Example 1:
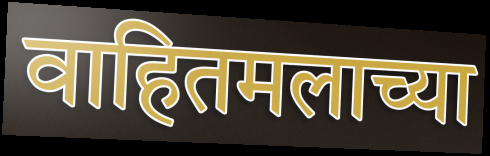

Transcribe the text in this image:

वाहितमलाच्या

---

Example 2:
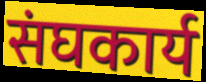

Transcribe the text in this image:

संघकार्य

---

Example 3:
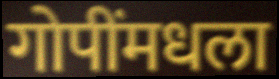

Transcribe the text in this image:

गोपींमधला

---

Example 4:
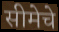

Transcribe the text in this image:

सीमेचे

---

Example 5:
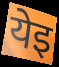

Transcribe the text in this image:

येइ